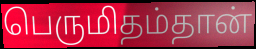
பெருமிதம்தான்